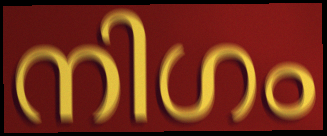
നിഗം